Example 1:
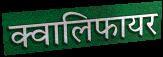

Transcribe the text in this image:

क्वालिफायर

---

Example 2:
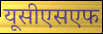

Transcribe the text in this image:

यूसीएसएफ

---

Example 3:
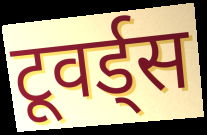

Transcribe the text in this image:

टूवर्ड्स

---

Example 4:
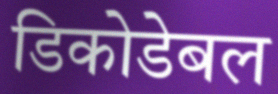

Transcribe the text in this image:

डिकोडेबल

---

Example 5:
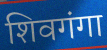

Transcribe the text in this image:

शिवगंगा